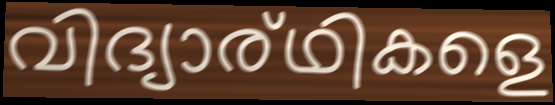
വിദ്യാര്ഥികളെ